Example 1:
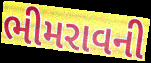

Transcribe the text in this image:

ભીમરાવની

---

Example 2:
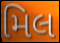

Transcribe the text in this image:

મિલ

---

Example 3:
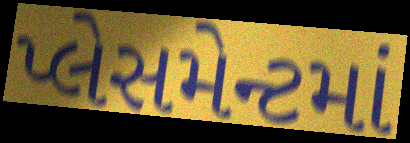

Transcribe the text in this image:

પ્લેસમેન્ટમાં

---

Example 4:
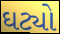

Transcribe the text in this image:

ઘટ્યો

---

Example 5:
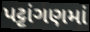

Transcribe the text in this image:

પટ્ટાંગણમાં